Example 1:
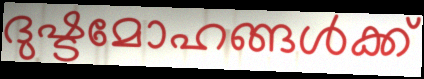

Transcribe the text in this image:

ദുഷ്ടമോഹങ്ങൾക്ക്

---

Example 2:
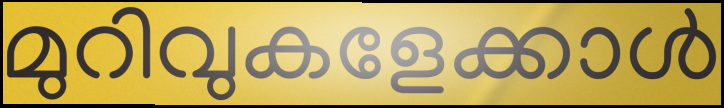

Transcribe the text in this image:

മുറിവുകളേക്കാൾ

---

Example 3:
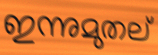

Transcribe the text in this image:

ഇന്നുമുതല്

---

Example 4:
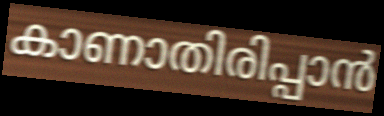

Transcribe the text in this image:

കാണാതിരിപ്പാൻ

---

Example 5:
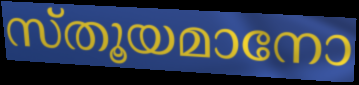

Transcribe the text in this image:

സ്തൂയമാനോ